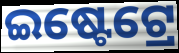
ଇଷ୍ଟେଟ୍ରେ